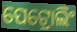
ପେଟ୍ରୋଲିଂ